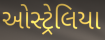
ઓસ્ટ્રેલિયા